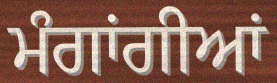
ਮੰਗਾਂਗੀਆਂ